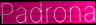
Padrona